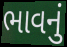
ભાવનું